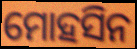
ମୋହସିନ